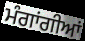
ਮੰਗਾਂਗੀਆਂ